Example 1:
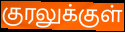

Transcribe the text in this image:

குரலுக்குள்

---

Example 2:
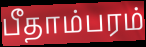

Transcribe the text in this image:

பீதாம்பரம்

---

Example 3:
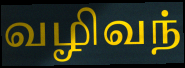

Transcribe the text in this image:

வழிவந்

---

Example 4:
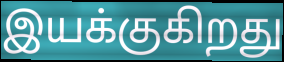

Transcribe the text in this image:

இயக்குகிறது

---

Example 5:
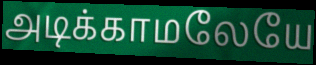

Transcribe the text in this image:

அடிக்காமலேயே